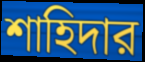
শাহিদার